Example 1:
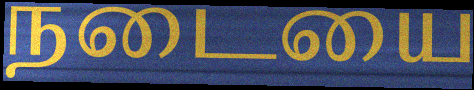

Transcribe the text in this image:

நடையை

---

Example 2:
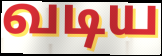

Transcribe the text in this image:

வடிய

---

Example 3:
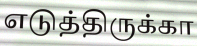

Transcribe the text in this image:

எடுத்திருக்கா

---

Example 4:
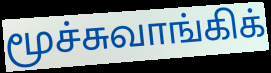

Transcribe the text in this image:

மூச்சுவாங்கிக்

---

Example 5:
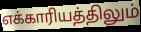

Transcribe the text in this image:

எக்காரியத்திலும்